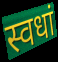
स्वधां